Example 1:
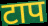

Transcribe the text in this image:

टाप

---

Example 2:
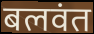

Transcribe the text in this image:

बलवंत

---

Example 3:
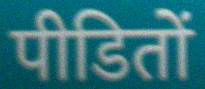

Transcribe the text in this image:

पीडितों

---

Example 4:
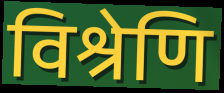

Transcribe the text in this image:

विश्रेणि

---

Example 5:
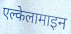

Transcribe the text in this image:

एल्केलामाइन